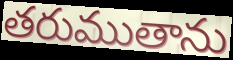
తరుముతాను